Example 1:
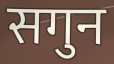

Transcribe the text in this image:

सगुन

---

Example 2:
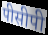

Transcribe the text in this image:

पीसीपी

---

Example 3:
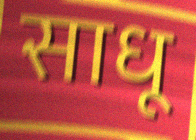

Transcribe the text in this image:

साधू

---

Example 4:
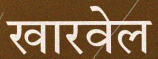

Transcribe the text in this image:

खारवेल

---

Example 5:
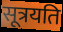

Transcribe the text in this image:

सूत्रयति